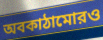
অবকাঠামোরও